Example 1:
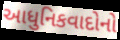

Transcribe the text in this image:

આધુનિકવાદોનો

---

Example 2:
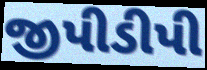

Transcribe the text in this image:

જીપીડીપી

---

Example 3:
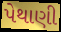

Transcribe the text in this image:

પેથાણી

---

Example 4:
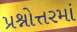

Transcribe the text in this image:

પ્રશ્નોત્તરમાં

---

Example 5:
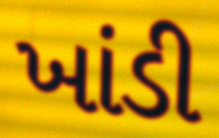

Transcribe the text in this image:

ખાંડી